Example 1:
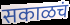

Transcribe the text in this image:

सकाळचं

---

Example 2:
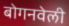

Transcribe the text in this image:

बोगनवेली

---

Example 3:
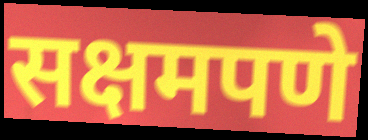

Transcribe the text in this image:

सक्षमपणे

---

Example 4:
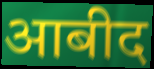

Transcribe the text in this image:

आबीद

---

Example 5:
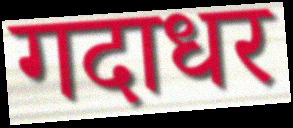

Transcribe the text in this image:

गदाधर